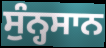
ਸੁੰਨ੍ਹਸਾਨ